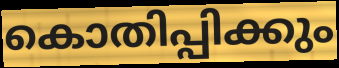
കൊതിപ്പിക്കും